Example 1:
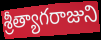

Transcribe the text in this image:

శ్రీత్యాగరాజుని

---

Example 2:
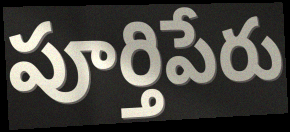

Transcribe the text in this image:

పూర్తిపేరు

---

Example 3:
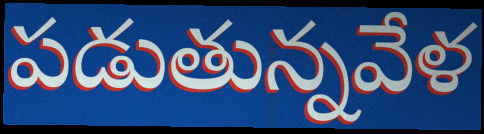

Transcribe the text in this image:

పడుతున్నవేళ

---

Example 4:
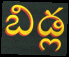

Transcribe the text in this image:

బిడ్ల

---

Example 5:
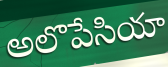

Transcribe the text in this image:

అలొపేసియా